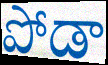
పోడా